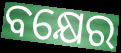
ବକ୍ଷେର